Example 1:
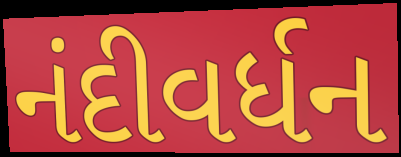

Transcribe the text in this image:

નંદીવર્ધન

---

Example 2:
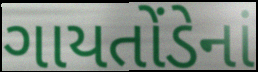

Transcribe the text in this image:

ગાયતોંડેનાં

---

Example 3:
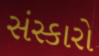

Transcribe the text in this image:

સંસ્કારો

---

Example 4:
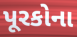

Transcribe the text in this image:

પૂરકોના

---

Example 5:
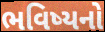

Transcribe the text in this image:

ભવિષ્યનો